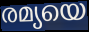
രമ്യയെ